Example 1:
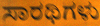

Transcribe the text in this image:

ಸಾರಥಿಗಳು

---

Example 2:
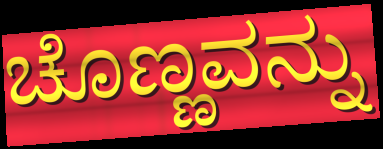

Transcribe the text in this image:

ಚೊಣ್ಣವನ್ನು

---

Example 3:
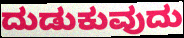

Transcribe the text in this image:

ದುಡುಕುವುದು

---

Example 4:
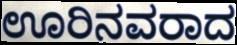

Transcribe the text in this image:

ಊರಿನವರಾದ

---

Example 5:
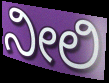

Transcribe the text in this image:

ನೀಲಿ